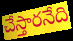
చేస్తారనేది